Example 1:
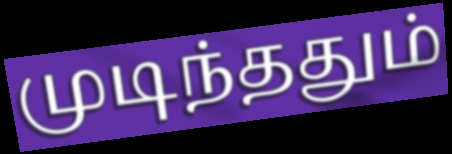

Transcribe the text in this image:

முடிந்ததும்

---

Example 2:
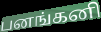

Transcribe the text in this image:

பனங்கனி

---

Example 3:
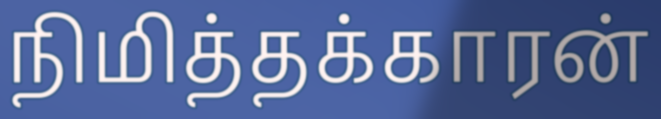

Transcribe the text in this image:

நிமித்தக்காரன்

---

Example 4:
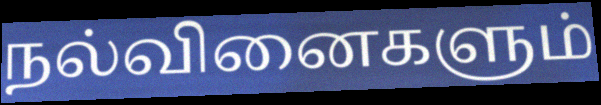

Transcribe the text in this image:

நல்வினைகளும்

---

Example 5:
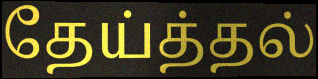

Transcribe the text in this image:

தேய்த்தல்